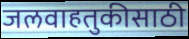
जलवाहतुकीसाठी